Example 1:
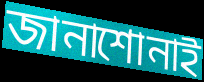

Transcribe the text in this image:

জানাশোনাই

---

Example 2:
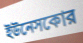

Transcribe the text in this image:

ইউনেসকোর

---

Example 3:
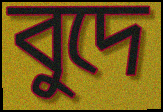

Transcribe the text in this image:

বুদে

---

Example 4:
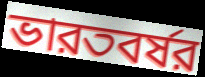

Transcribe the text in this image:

ভারতবর্ষর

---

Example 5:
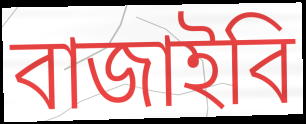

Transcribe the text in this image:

বাজাইবি